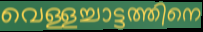
വെള്ളച്ചാട്ടത്തിനെ